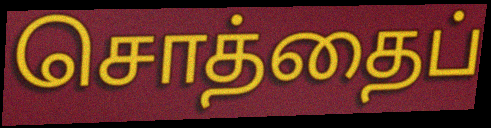
சொத்தைப்